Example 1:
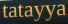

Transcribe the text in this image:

tatayya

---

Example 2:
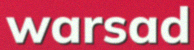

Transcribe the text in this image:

warsad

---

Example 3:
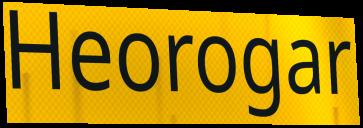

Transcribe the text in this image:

Heorogar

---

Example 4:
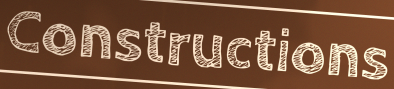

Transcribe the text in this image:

Constructions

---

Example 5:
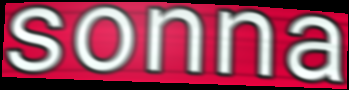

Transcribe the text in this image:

sonna